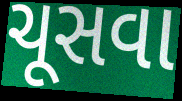
ચૂસવા